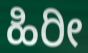
ಹಿರೀ